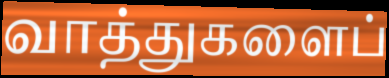
வாத்துகளைப்